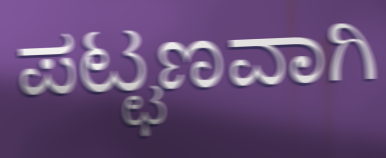
ಪಟ್ಟಣವಾಗಿ